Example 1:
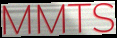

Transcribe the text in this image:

MMTS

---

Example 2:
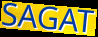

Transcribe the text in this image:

SAGAT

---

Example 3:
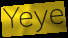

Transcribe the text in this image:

Yeye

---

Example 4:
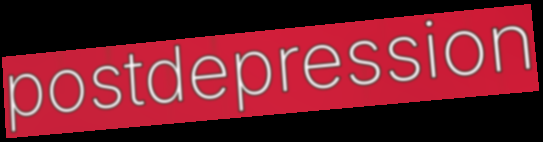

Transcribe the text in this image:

postdepression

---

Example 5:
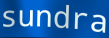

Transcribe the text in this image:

sundra